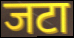
जटा